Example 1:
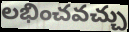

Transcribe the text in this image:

లభించవచ్చు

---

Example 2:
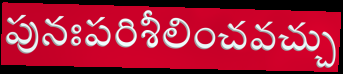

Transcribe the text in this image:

పునఃపరిశీలించవచ్చు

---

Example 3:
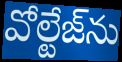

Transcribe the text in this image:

వోల్టేజ్‌ను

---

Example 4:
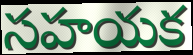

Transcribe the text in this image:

సహయక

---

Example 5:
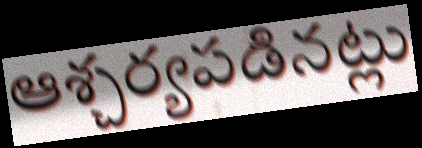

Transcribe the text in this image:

ఆశ్చర్యపడినట్లు